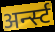
अर्न्स्ट